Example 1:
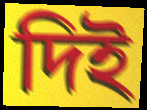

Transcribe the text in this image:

দিই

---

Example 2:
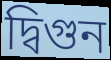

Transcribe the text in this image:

দ্বিগুন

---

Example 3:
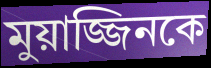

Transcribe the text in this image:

মুয়াজ্জিনকে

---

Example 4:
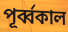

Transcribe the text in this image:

পূর্ব্বকাল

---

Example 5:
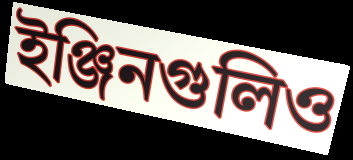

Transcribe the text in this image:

ইঞ্জিনগুলিও